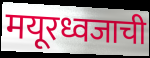
मयूरध्वजाची